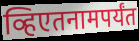
व्हिएतनामपर्यंत